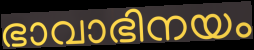
ഭാവാഭിനയം